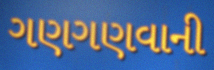
ગણગણવાની